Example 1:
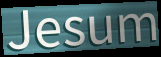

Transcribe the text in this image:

Jesum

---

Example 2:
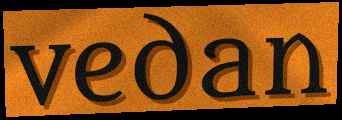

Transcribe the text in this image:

vedan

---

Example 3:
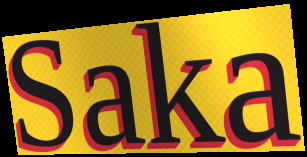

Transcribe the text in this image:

Saka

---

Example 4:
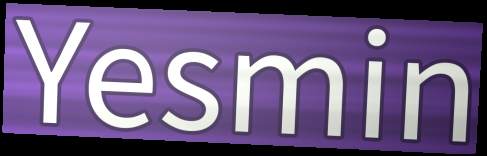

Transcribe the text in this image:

Yesmin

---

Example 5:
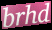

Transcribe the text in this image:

brhd